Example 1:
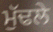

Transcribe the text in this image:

ਮੁੱਢਲੇ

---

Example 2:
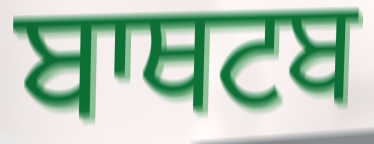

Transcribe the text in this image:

ਬਾਥਟਬ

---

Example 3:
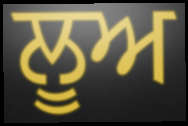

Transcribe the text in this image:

ਲੂਅ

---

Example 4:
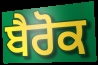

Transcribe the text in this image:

ਬੈਰੋਕ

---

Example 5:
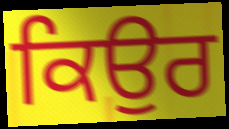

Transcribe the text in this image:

ਕਿਉਰ